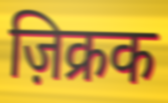
ज़िक्रक